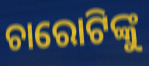
ଚାରୋଟିଙ୍କୁ